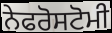
ਨੇਫਰੋਸਟੋਮੀ